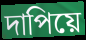
দাপিয়ে